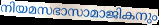
നിയമസഭാസാമാജികനും